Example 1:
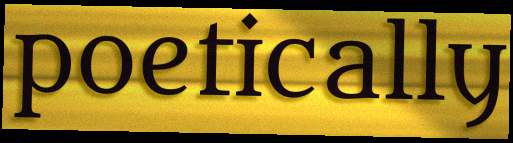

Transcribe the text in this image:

poetically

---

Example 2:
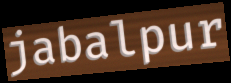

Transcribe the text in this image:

jabalpur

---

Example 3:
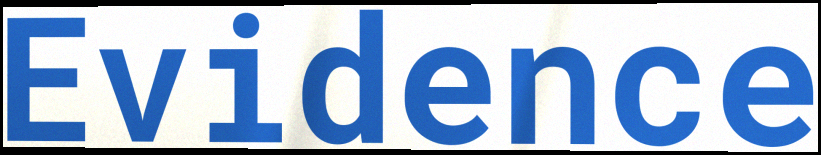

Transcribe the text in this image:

Evidence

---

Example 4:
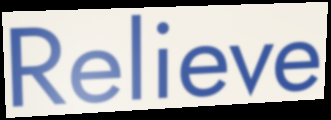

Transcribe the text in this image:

Relieve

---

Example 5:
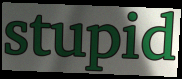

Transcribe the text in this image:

stupid